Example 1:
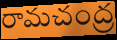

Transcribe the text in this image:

రామచంద్ర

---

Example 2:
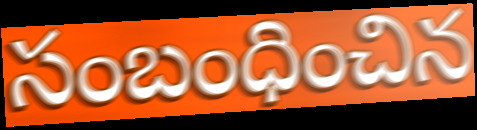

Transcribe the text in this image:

సంబంధించిన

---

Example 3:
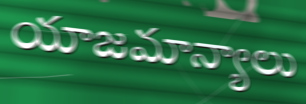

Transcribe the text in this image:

యాజమాన్యాలు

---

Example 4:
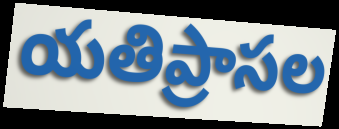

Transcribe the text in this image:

యతిప్రాసల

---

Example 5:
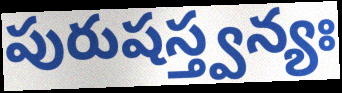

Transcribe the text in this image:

పురుషస్త్వన్యః